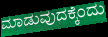
ಮಾಡುವುದಕ್ಕೆಂದು